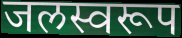
जलस्वरूप